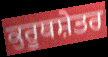
ਕੁਰੂਥਸ਼ੇਤਰ